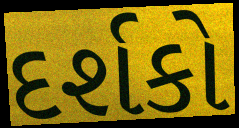
દર્શકો